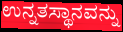
ಉನ್ನತಸ್ಥಾನವನ್ನು